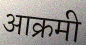
आक्रमी